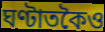
ঘণ্টাতকৈও